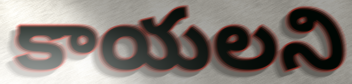
కాయలని